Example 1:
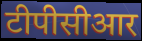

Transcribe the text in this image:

टीपीसीआर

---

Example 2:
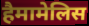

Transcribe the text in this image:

हैमामेलिस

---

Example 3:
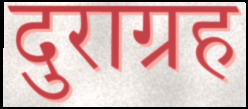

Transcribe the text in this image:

दुराग्रह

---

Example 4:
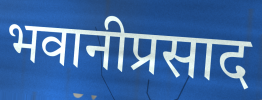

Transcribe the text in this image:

भवानीप्रसाद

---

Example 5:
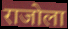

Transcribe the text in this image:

राजोला